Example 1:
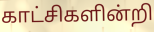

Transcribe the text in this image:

காட்சிகளின்றி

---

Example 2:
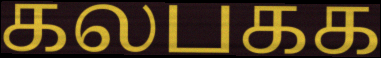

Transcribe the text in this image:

கலபகக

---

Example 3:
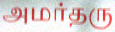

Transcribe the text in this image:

அமர்தரு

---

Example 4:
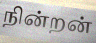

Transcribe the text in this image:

நின்றன்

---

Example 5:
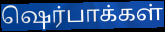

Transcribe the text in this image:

ஷெர்பாக்கள்